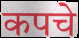
कपचे